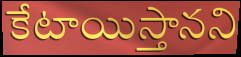
కేటాయిస్తానని